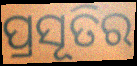
ପ୍ରସୂତିର